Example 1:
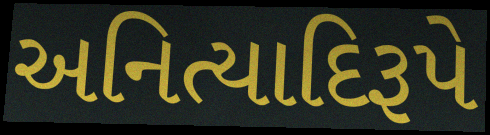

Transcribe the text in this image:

અનિત્યાદિરૂપે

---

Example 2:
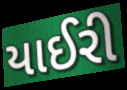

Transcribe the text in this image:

યાઈરી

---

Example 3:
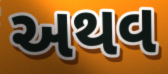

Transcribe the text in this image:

અથવ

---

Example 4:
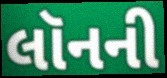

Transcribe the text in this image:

લૉનની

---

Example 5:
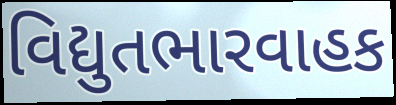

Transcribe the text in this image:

વિદ્યુતભારવાહક